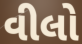
વીલો